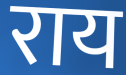
राय